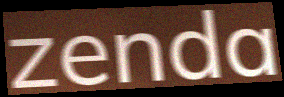
zenda